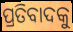
ପ୍ରତିବାଦକୁ